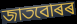
জাতবোৰৰ